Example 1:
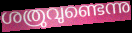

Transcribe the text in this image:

ശത്രുവുണ്ടെന്നു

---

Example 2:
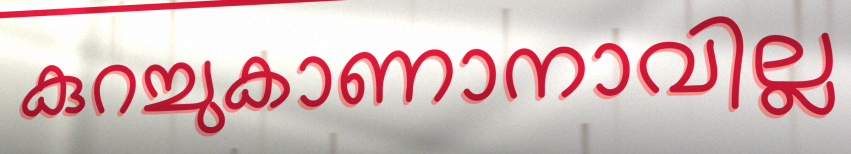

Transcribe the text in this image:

കുറച്ചുകാണാനാവില്ല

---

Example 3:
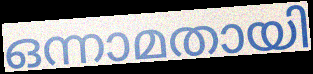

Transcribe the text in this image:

ഒന്നാമതായി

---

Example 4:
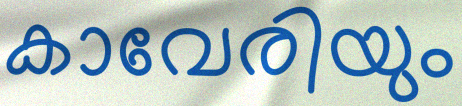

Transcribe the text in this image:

കാവേരിയും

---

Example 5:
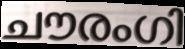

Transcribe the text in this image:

ചൗരംഗി